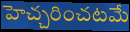
హెచ్చరించటమే